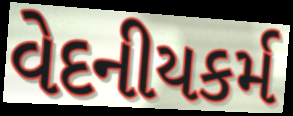
વેદનીયકર્મ